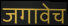
जगावेच